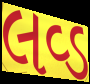
લવ્ડ